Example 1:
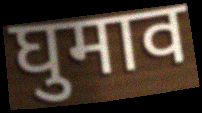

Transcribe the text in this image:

घुमाव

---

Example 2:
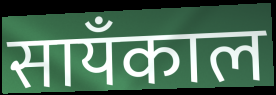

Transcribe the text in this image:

सायँकाल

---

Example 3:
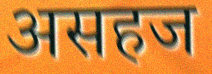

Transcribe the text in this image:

असहज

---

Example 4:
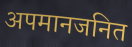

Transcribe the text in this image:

अपमानजनित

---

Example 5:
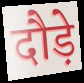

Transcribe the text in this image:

दौड़े